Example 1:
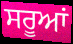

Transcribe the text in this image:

ਸਰੂਆਂ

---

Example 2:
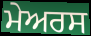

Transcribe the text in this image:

ਮੇਅਰਸ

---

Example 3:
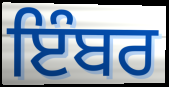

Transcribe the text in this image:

ਇੰਬਰ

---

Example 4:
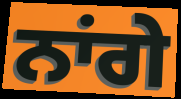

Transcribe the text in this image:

ਨਾਂਗੇ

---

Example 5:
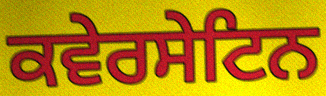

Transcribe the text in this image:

ਕਵੇਰਸੇਟਿਨ